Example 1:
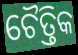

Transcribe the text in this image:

ଚୈତ୍ତିକ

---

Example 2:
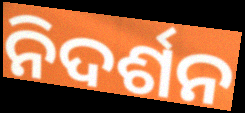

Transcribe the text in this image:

ନିଦର୍ଶନ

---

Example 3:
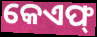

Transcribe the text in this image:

କେଏଫ୍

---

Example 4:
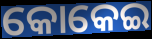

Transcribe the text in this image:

କୋକେଇ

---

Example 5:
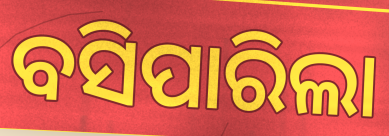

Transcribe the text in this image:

ବସିପାରିଲା